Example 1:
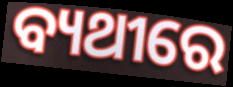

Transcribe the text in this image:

ବ୍ୟଥୀରେ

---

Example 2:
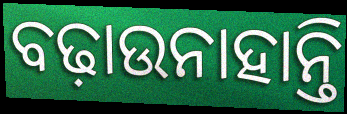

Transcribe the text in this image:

ବଢ଼ାଉନାହାନ୍ତି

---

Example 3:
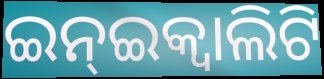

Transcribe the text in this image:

ଇନ୍ଇକ୍ଵାଲିଟି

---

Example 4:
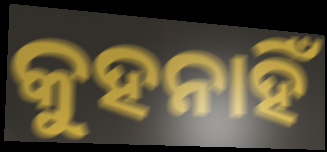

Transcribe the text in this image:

କୁହନାହିଁ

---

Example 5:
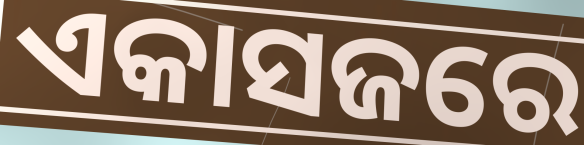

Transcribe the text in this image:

ଏକାସଜରେ